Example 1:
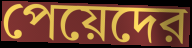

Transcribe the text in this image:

পেয়েদের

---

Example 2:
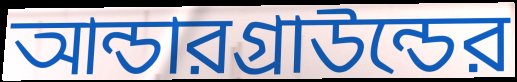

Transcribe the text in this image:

আন্ডারগ্রাউন্ডের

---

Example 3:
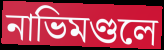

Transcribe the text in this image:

নাভিমণ্ডলে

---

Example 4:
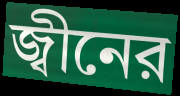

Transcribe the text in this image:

জ্বীনের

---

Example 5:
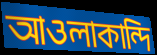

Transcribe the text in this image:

আওলাকান্দি